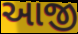
આજી